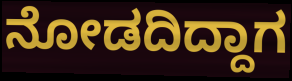
ನೋಡದಿದ್ದಾಗ